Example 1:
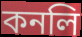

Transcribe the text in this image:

কনলি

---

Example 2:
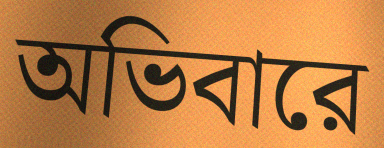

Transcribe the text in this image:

অভিবারে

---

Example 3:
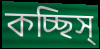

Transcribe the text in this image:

কচ্ছিস্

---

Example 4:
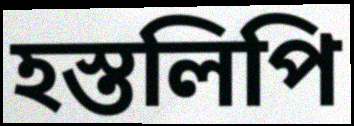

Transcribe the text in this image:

হস্তলিপি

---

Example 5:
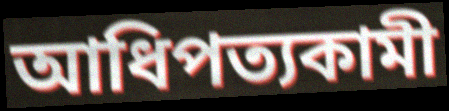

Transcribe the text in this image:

আধিপত্যকামী